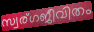
സ്വര്ഗജീവിതം